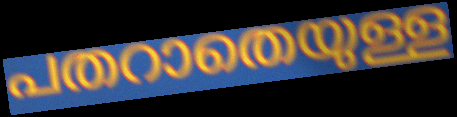
പതറാതെയുള്ള